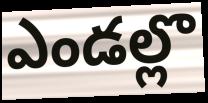
ఎండల్లొ